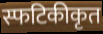
स्फटिकीकृत